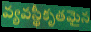
వ్యవస్థీకృతమైన